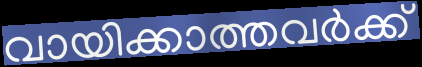
വായിക്കാത്തവർക്ക്